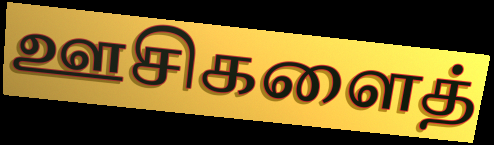
ஊசிகளைத்